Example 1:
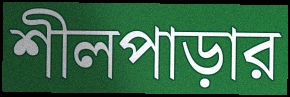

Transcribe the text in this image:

শীলপাড়ার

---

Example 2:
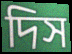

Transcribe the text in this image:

দিস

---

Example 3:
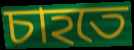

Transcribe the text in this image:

চাহতে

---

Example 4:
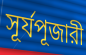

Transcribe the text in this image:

সূর্যপূজারী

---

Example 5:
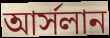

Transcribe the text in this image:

আর্সলান